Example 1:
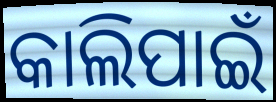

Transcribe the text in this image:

କାଲିପାଇଁ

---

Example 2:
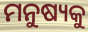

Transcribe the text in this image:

ମନୁଷ୍ୟକୁ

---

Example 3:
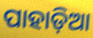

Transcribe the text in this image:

ପାହାଡ଼ିଆ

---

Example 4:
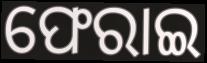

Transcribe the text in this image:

ଫେରାଇ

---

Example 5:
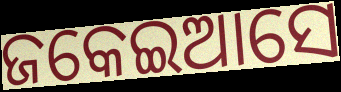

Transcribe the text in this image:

ଜକେଇଆସେ